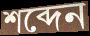
শব্দেন